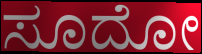
ಸೂದೋ